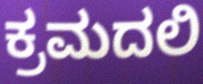
ಕ್ರಮದಲಿ